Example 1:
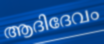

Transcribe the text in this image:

ആദിദേവം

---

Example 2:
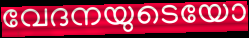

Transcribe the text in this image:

വേദനയുടെയോ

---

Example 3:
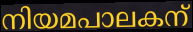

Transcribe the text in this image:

നിയമപാലകന്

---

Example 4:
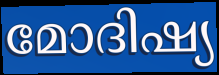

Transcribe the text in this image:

മോദിഷ്യ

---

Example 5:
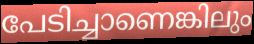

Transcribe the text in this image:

പേടിച്ചാണെങ്കിലും